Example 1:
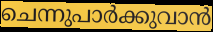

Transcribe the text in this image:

ചെന്നുപാർക്കുവാൻ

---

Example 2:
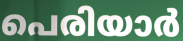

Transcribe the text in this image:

പെരിയാർ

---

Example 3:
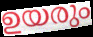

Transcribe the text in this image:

ഉയരും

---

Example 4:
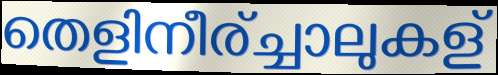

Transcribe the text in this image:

തെളിനീര്ച്ചാലുകള്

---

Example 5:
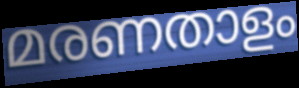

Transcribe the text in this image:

മരണതാളം